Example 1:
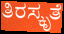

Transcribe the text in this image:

ತಿರಸ್ಕೃತೆ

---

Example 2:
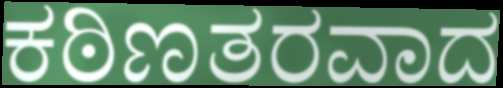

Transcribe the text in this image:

ಕಠಿಣತರವಾದ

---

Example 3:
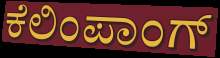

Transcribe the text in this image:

ಕೆಲಿಂಪಾಂಗ್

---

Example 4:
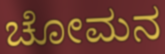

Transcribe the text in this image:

ಚೋಮನ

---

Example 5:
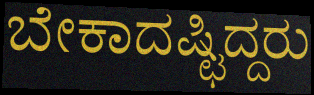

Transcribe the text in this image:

ಬೇಕಾದಷ್ಟಿದ್ದರು